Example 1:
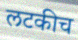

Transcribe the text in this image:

लटकीच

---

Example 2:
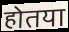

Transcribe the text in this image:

होतया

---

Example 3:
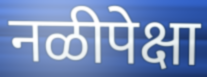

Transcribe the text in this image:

नळीपेक्षा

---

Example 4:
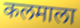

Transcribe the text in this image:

कलमाला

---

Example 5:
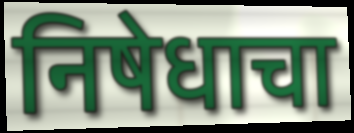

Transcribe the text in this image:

निषेधाचा